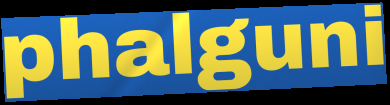
phalguni